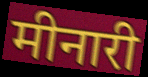
मीनारी